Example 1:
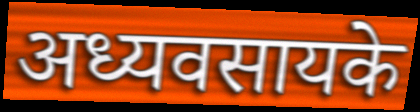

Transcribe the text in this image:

अध्यवसायके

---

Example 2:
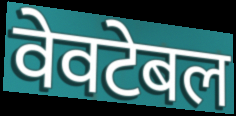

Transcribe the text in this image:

वेवटेबल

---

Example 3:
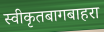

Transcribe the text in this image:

स्वीकृतबागबाहरा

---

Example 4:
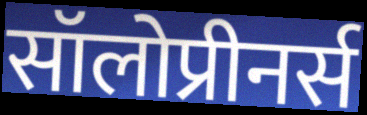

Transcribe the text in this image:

सॉलोप्रीनर्स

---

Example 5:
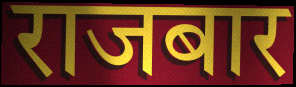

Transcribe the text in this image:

राजबार